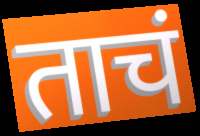
ताचं